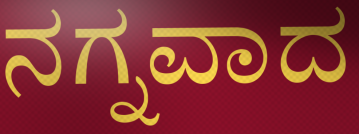
ನಗ್ನವಾದ